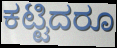
ಕಟ್ಟಿದರೂ